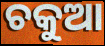
ଚକୁଆ